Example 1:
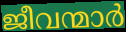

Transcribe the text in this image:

ജീവന്മാർ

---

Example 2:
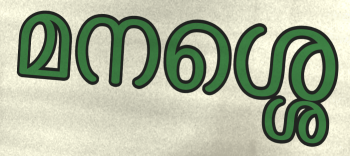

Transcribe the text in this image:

മനശ്ശെ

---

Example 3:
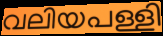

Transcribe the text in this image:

വലിയപള്ളി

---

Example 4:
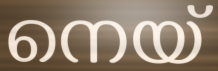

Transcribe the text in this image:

നെയ്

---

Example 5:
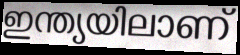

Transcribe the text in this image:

ഇന്ത്യയിലാണ്